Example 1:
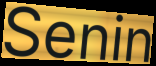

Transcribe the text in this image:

Senin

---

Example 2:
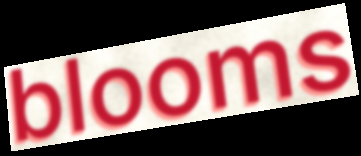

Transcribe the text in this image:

blooms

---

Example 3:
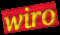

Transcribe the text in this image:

wiro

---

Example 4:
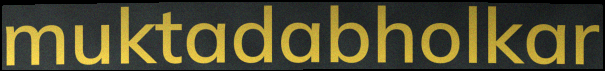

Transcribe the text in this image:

muktadabholkar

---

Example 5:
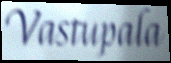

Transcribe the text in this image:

Vastupala